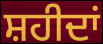
ਸ਼ਹੀਦਾਂ